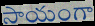
సాయంగా